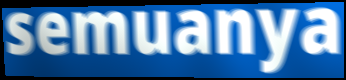
semuanya